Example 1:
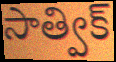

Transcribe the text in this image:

సాత్విక్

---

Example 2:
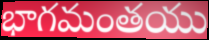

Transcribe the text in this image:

భాగమంతయు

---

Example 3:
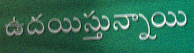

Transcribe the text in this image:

ఉదయిస్తున్నాయి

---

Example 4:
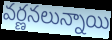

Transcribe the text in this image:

వర్ణనలున్నాయి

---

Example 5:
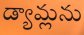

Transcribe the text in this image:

డ్యామ్లను